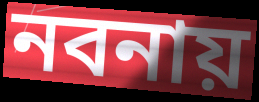
নবনায়